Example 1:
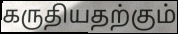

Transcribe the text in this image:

கருதியதற்கும்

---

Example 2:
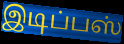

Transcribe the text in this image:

இடிப்பஸ்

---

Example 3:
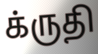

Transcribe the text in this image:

க்ருதி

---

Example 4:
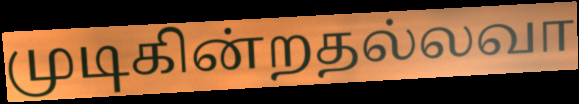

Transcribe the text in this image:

முடிகின்றதல்லவா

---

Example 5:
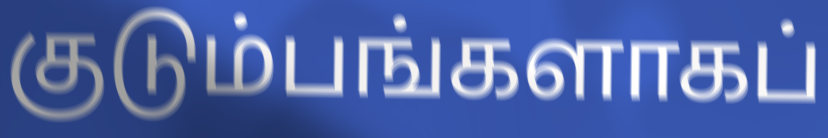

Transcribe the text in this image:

குடும்பங்களாகப்